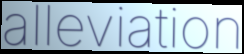
alleviation